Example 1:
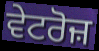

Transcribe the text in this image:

ਵੇਟਰੋਜ਼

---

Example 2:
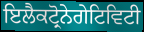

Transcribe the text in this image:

ਇਲੈਕਟ੍ਰੋਨੇਗੇਟਿਵਿਟੀ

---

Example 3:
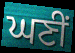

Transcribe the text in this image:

ਘਣੀਂ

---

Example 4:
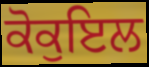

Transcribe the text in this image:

ਕੋਕੁਇਲ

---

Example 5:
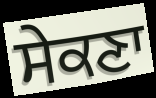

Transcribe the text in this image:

ਸੇਕਣਾ